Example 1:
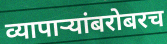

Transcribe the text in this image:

व्यापाऱ्यांबरोबरच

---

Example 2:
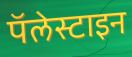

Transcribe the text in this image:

पॅलेस्टाइन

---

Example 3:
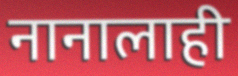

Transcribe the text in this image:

नानालाही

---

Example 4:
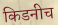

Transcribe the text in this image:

किडनीच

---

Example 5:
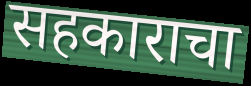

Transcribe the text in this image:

सहकाराचा